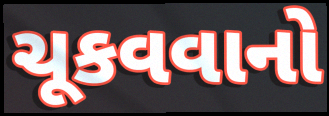
ચૂકવવાનો